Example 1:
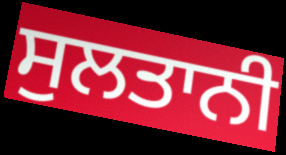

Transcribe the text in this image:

ਸੁਲਤਾਨੀ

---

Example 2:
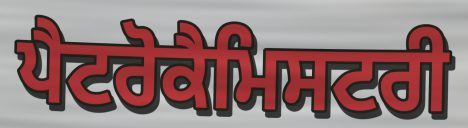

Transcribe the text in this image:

ਪੈਟਰੋਕੈਮਿਸਟਰੀ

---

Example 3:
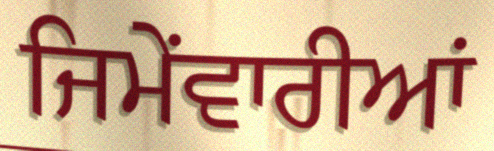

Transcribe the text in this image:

ਜਿਮੇਂਵਾਰੀਆਂ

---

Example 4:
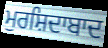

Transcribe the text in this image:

ਮੁਰਸ਼ਿਦਾਬਾਦ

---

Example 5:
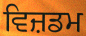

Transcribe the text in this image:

ਵਿਜ਼ਡਮ